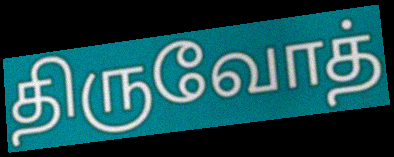
திருவோத்